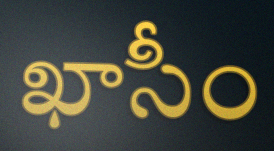
ఖాసీం